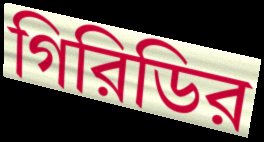
গিরিডির